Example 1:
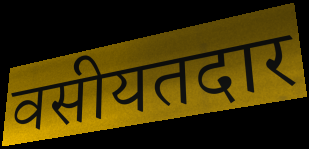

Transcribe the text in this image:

वसीयतदार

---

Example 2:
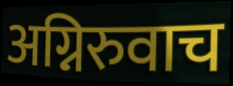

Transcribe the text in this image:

अग्निरुवाच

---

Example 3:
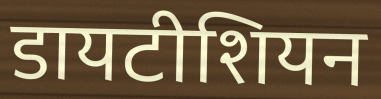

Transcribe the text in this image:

डायटीशियन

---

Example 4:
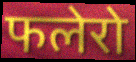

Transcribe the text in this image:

फलेरो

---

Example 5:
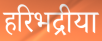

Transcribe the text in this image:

हरिभद्रीया